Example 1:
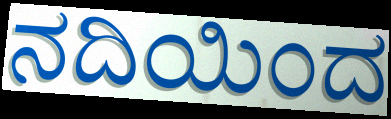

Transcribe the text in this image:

ನದಿಯಿಂದ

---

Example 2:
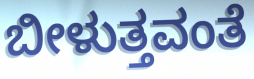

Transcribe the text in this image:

ಬೀಳುತ್ತವಂತೆ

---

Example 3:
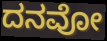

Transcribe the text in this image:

ದನವೋ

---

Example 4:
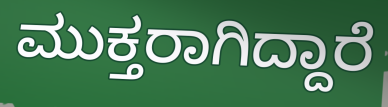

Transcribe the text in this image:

ಮುಕ್ತರಾಗಿದ್ದಾರೆ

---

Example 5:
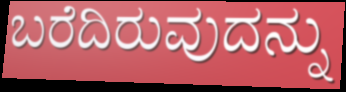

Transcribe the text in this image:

ಬರೆದಿರುವುದನ್ನು